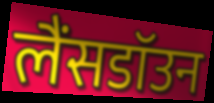
लैंसडॉउन